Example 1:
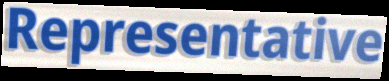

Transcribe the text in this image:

Representative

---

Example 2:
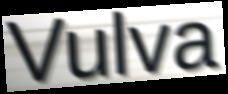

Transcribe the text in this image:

Vulva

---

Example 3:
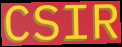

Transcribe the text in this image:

CSIR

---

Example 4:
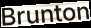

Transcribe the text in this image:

Brunton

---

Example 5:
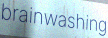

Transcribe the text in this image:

brainwashing